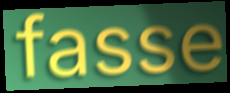
fasse